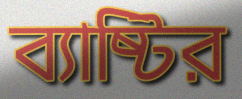
ব্যাষ্টির